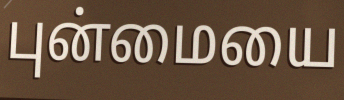
புன்மையை